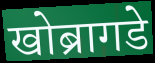
खोब्रागडे